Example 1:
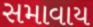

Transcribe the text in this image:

સમાવાય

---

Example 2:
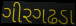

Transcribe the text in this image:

ગીરગઢડા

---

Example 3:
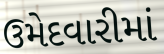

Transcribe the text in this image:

ઉમેદવારીમાં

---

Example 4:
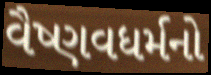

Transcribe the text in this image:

વૈષ્ણવધર્મનો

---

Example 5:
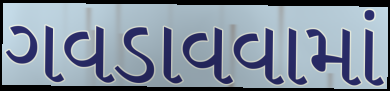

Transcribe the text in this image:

ગવડાવવામાં